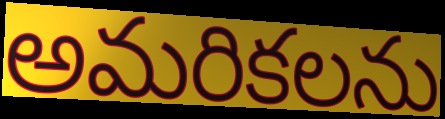
అమరికలను